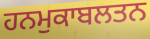
ਹਨਮੁਕਾਬਲਤਨ